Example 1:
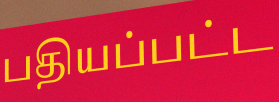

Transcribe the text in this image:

பதியப்பட்ட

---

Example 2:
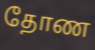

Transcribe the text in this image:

தோண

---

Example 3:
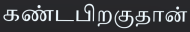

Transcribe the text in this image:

கண்டபிறகுதான்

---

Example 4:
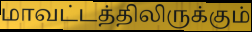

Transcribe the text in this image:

மாவட்டத்திலிருக்கும்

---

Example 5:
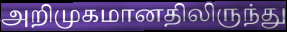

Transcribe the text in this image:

அறிமுகமானதிலிருந்து